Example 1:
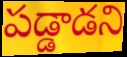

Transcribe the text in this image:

పడ్డాడని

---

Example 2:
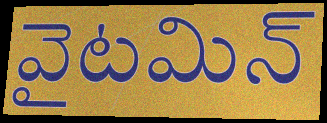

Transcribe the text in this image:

వైటమిన్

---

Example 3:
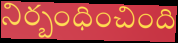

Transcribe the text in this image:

నిర్బంధించింది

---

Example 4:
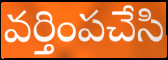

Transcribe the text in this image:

వర్తింపచేసి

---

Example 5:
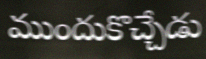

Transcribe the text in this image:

ముందుకొచ్చేడు